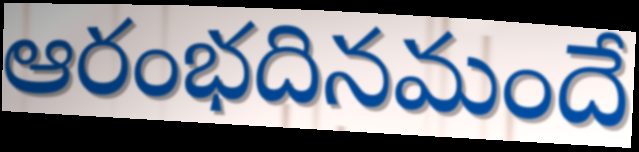
ఆరంభదినమందే